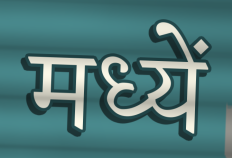
मध्यें